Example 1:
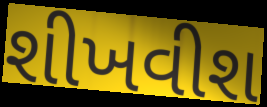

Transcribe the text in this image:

શીખવીશ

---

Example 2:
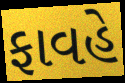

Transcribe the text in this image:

ફાવહે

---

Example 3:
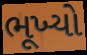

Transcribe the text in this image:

ભૂખ્યો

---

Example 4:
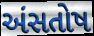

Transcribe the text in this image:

અંસતોષ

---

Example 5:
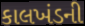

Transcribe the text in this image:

કાલખંડની